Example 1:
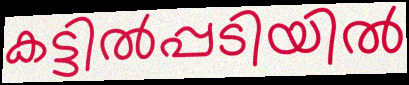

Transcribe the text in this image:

കട്ടിൽപ്പടിയിൽ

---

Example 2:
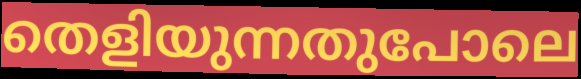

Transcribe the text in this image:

തെളിയുന്നതുപോലെ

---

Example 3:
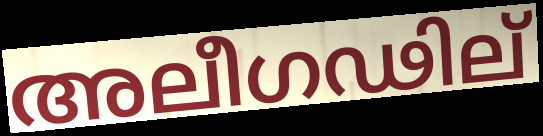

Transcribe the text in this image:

അലീഗഢില്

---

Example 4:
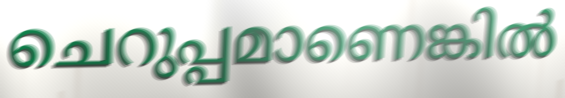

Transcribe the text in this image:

ചെറുപ്പമാണെങ്കിൽ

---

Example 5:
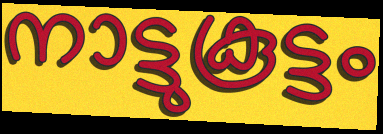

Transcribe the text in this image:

നാട്ടുകൂട്ടം